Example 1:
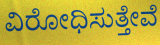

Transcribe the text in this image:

ವಿರೋಧಿಸುತ್ತೇವೆ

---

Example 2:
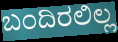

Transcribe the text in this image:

ಬಂದಿರಲಿಲ್ಲ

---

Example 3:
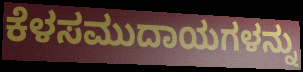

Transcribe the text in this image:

ಕೆಳಸಮುದಾಯಗಳನ್ನು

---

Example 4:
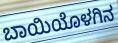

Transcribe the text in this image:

ಬಾಯಿಯೊಳಗಿನ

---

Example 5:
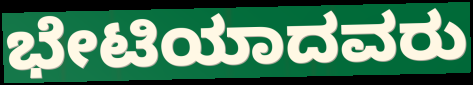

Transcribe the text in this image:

ಭೇಟಿಯಾದವರು